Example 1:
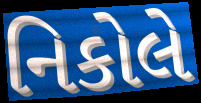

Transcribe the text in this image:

નિકોલે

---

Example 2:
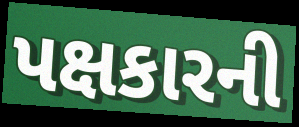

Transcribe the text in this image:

પક્ષકારની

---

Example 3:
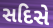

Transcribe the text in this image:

સદિસે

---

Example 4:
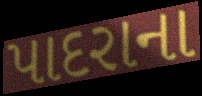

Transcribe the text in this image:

પાદરાના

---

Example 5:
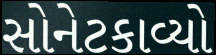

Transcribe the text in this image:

સોનેટકાવ્યો